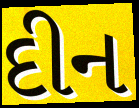
દીન